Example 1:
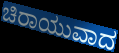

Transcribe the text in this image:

ಚಿರಾಯುವಾದ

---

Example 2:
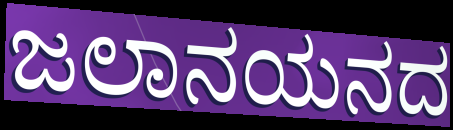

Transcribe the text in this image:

ಜಲಾನಯನದ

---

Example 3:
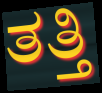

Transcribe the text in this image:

ತತ್ತಿ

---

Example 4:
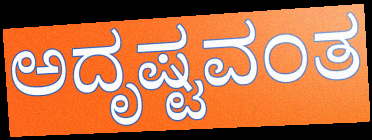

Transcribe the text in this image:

ಅದೃಷ್ಟವಂತ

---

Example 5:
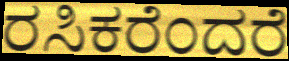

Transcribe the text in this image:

ರಸಿಕರೆಂದರೆ